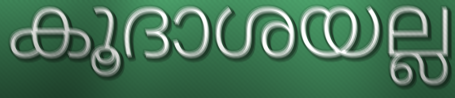
കൂദാശയല്ല